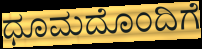
ಧೂಮದೊಂದಿಗೆ